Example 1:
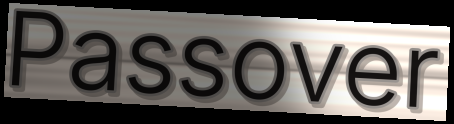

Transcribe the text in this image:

Passover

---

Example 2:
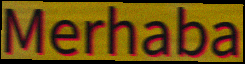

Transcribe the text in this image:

Merhaba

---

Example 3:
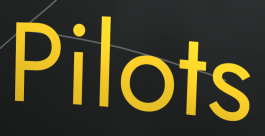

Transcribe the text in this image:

Pilots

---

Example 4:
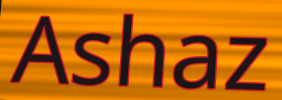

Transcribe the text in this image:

Ashaz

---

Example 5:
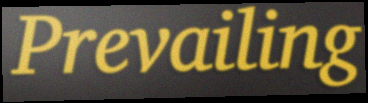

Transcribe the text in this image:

Prevailing